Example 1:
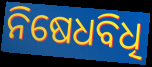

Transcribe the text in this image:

ନିଷେଧବିଧି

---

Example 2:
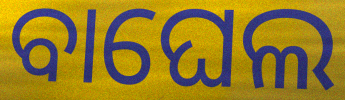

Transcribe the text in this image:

ବାଘେଲ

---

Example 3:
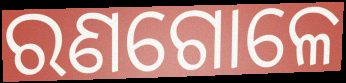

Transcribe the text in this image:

ରଣଗୋଳେ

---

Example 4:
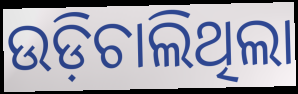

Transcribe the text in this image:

ଉଡ଼ିଚାଲିଥିଲା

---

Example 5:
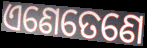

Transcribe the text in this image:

ଏଣେତେଣେ